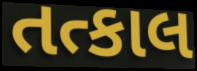
તત્કાલ